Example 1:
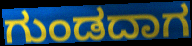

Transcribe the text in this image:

ಗುಂಡದಾಗ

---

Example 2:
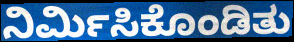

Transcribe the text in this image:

ನಿರ್ಮಿಸಿಕೊಂಡಿತು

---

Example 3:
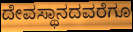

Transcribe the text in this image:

ದೇವಸ್ಥಾನದವರೆಗೂ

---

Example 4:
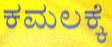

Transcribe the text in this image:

ಕಮಲಕ್ಕೆ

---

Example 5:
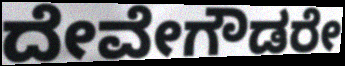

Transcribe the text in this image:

ದೇವೇಗೌಡರೇ